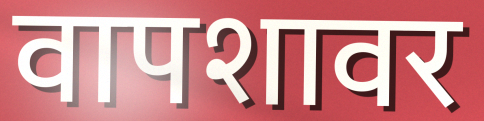
वापशावर